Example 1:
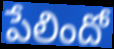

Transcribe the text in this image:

పేలిందో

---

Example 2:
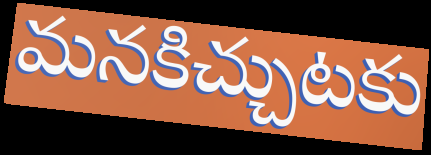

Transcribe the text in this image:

మనకిచ్చుటకు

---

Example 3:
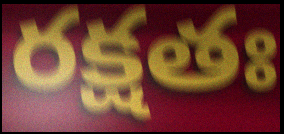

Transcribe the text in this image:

రక్షతః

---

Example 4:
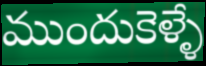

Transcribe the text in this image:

ముందుకెళ్ళే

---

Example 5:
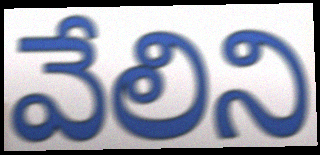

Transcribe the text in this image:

వేలిని